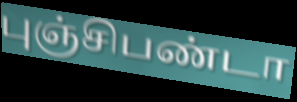
புஞ்சிபண்டா